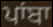
ਪਾਂਬਾ